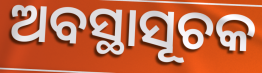
ଅବସ୍ଥାସୂଚକ